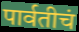
पार्वतीचं